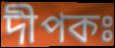
দীপকঃ